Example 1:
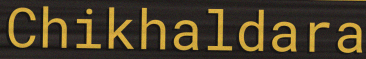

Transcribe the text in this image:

Chikhaldara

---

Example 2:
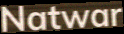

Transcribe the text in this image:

Natwar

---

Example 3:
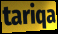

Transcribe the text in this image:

tariqa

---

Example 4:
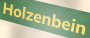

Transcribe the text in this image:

Holzenbein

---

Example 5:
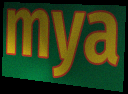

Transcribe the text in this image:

mya